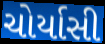
ચોર્યાસી